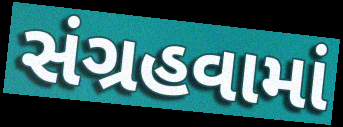
સંગ્રહવામાં